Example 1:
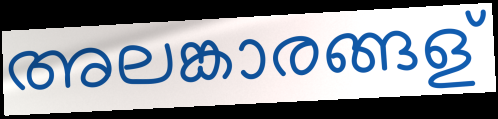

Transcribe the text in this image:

അലങ്കാരങ്ങള്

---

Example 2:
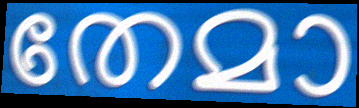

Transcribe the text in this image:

തേമാ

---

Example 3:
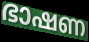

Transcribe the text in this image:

ഭാഷണ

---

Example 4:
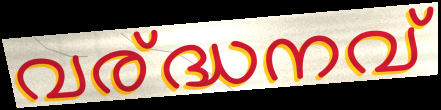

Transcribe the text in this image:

വര്ദ്ധനവ്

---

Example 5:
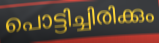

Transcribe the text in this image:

പൊട്ടിച്ചിരിക്കും